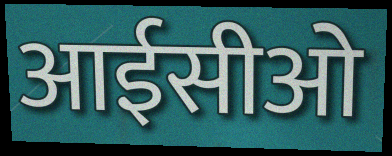
आईसीओ